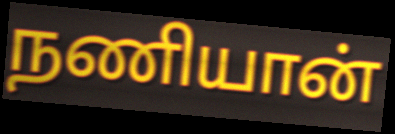
நணியான்